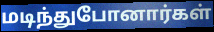
மடிந்துபோனார்கள்